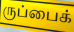
ருப்பைக்